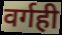
वर्गही